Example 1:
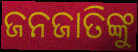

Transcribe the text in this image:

ଜନଜାତିଙ୍କୁ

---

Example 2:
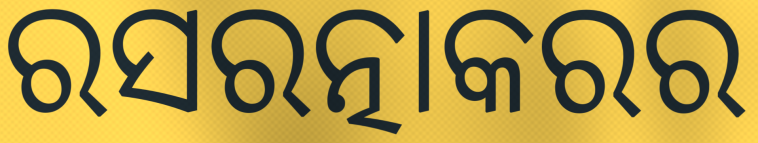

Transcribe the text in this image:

ରସରତ୍ନାକରର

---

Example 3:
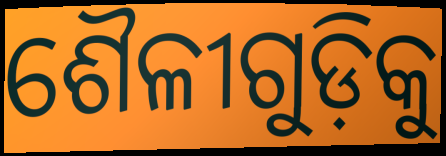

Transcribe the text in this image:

ଶୈଳୀଗୁଡ଼ିକୁ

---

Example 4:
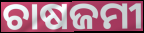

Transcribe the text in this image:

ଚାଷଜମୀ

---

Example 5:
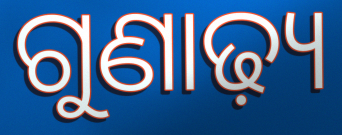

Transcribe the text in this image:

ଗୁଣାଢ଼୍ୟ